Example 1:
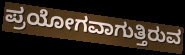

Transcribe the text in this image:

ಪ್ರಯೋಗವಾಗುತ್ತಿರುವ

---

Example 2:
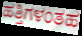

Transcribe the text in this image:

ಹತ್ತಿಗಳಂತಹ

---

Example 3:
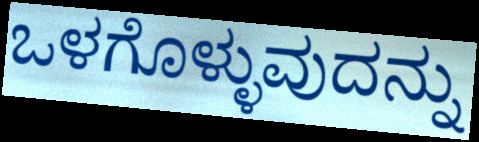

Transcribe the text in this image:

ಒಳಗೊಳ್ಳುವುದನ್ನು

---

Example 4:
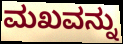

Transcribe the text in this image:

ಮಖವನ್ನು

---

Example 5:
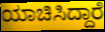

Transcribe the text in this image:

ಯಾಚಿಸಿದ್ದಾರೆ